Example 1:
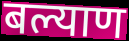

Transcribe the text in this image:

बल्याण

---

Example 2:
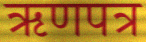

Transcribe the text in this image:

ऋणपत्र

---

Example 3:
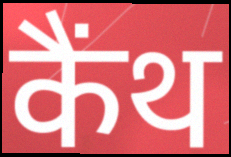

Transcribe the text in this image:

कैंथ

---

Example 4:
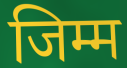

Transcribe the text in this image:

जिम्म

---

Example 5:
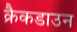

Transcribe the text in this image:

क्रैकडाउन